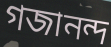
গজানন্দ